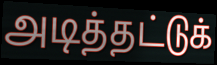
அடித்தட்டுக்